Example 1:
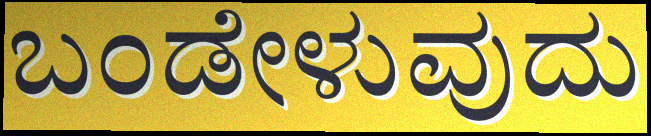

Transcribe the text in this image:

ಬಂಡೇಳುವುದು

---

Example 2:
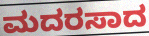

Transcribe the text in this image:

ಮದರಸಾದ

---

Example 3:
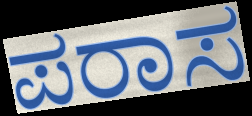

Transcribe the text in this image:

ಪರಾಸ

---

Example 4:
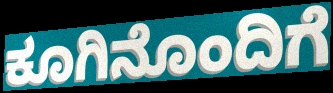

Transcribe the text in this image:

ಕೂಗಿನೊಂದಿಗೆ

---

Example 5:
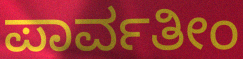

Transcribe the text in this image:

ಪಾರ್ವತೀಂ